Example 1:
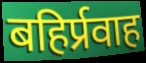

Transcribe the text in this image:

बहिर्प्रवाह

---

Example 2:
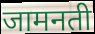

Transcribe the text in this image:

जामनती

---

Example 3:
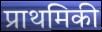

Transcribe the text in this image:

प्राथमिकी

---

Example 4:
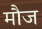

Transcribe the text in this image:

मौज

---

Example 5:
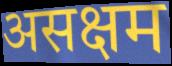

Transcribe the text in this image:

असक्षम